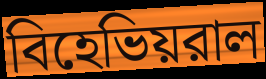
বিহেভিয়রাল